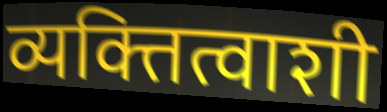
व्यक्तित्वाशी